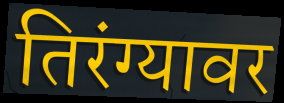
तिरंग्यावर